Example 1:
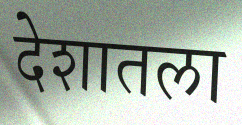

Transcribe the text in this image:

देशातला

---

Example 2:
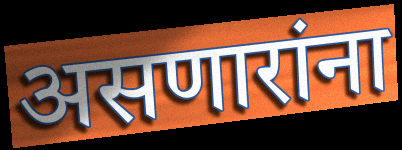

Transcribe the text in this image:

असणारांना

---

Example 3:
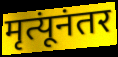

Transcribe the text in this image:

मृत्यूंनंतर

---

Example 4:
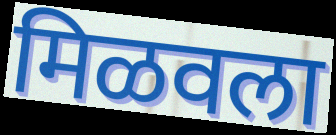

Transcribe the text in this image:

मिळवला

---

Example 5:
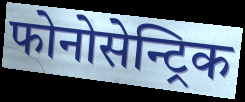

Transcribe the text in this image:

फोनोसेन्ट्रिक